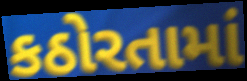
કઠોરતામાં